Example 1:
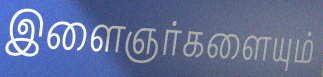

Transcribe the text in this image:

இளைஞர்களையும்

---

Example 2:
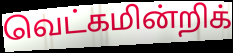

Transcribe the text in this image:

வெட்கமின்றிக்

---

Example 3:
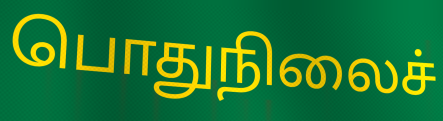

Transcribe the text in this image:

பொதுநிலைச்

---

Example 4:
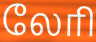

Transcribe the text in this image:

லேரி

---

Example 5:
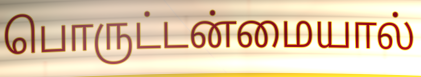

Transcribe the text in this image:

பொருட்டன்மையால்